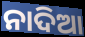
ନାଦିଆ